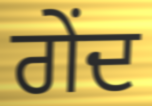
ਗੇਂਦ